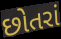
છોતરાં